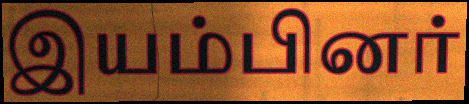
இயம்பினர்